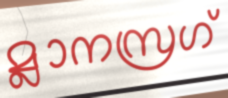
മ്ലാനസ്രഗ്